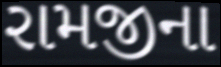
રામજીના